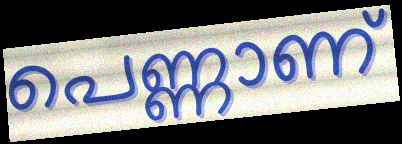
പെണ്ണാണ്